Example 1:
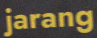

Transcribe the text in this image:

jarang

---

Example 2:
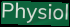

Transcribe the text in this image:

Physiol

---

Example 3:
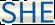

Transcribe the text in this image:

SHE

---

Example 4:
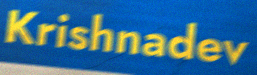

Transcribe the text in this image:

Krishnadev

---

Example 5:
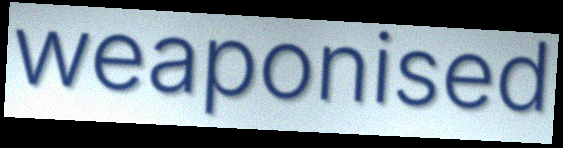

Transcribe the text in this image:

weaponised